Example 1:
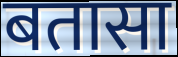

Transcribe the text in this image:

बतासा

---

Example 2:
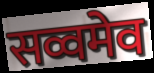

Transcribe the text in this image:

सव्वमेव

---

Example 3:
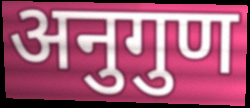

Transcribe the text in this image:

अनुगुण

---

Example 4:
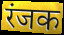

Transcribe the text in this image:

रंजक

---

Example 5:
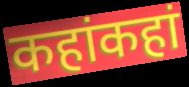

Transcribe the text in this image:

कहांकहां